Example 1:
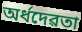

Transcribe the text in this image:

অৰ্ধদেৱতা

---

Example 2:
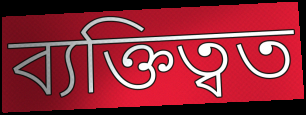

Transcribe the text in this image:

ব্যক্তিত্বত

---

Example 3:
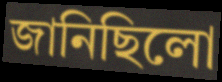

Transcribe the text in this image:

জানিছিলো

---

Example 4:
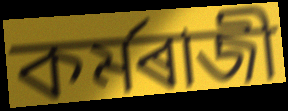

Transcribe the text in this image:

কৰ্মৰাজী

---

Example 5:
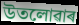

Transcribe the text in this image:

উতলোৱাৰ